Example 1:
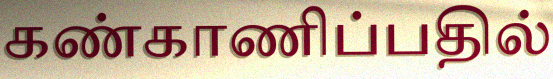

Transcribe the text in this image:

கண்காணிப்பதில்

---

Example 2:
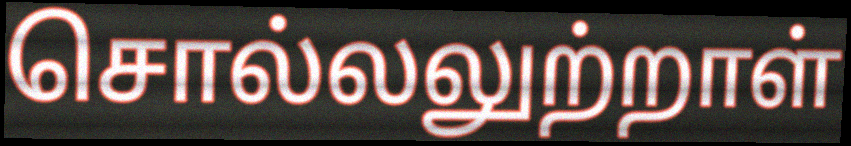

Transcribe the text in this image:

சொல்லலுற்றாள்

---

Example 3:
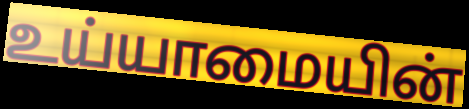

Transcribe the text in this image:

உய்யாமையின்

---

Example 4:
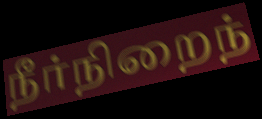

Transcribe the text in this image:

நீர்நிறைந்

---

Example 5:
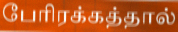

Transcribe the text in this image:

பேரிரக்கத்தால்